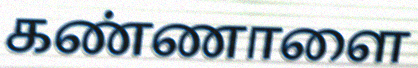
கண்ணாளை